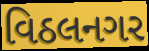
વિઠલનગર